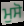
ਮੁਸੋ